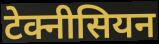
टेक्नीसियन